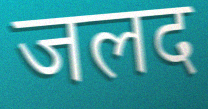
जलद